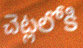
చెట్లలోకి